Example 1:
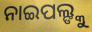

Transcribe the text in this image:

ନାଇପଲ୍ଙ୍କୁ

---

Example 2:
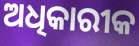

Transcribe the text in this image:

ଅଧିକାରୀକ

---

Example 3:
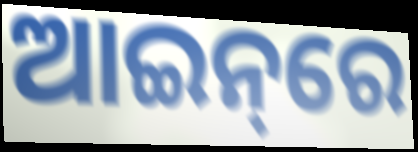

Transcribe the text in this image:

ଆଇନ୍‌ରେ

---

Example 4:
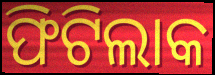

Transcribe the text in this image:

ଫିଟିଲାକ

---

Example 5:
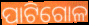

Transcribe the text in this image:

ପାଟିଗୋଳ